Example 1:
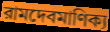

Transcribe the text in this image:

রামদেবমাণিক্য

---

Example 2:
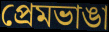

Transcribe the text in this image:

প্রেমভাঙা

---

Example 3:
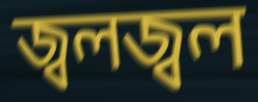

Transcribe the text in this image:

জ্বলজ্বল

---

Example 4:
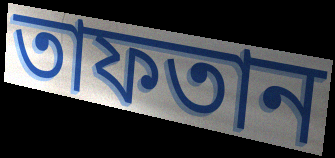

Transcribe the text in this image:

তাফতান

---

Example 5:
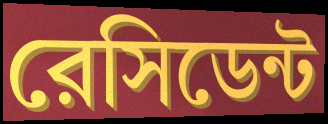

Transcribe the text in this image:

রেসিডেন্ট